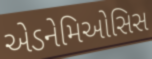
એડનેમિઓસિસ